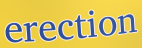
erection